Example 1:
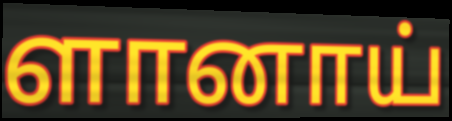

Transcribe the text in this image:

ளானாய்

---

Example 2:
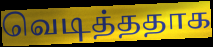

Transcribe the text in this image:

வெடித்ததாக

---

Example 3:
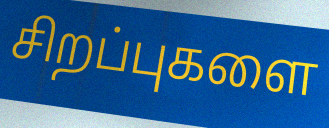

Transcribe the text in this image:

சிறப்புகளை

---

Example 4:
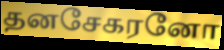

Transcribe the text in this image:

தனசேகரனோ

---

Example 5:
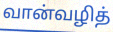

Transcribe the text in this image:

வான்வழித்